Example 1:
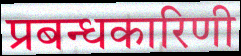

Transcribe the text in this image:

प्रबन्धकारिणी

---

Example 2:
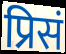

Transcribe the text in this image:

प्रिसं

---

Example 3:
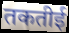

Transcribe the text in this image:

तकतीई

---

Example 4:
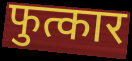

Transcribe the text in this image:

फुत्कार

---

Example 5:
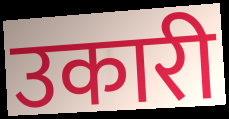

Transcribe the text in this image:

उकारी